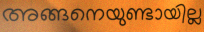
അങ്ങനെയുണ്ടായില്ല